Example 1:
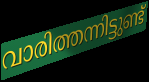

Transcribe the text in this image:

വാരിത്തന്നിട്ടുണ്ട്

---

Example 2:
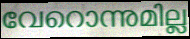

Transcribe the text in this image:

വേറൊന്നുമില്ല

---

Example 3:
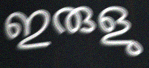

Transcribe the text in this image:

ഇരുളു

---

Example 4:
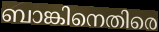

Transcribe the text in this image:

ബാങ്കിനെതിരെ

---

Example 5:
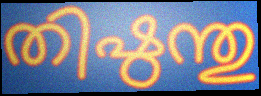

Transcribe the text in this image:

തിഷ്ഠന്തു